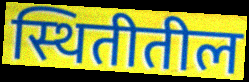
स्थितीतील